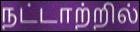
நட்டாற்றில்